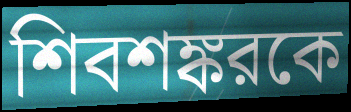
শিবশঙ্করকে